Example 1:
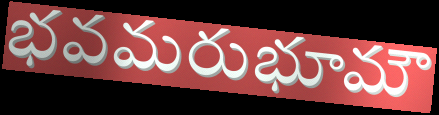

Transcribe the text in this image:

భవమరుభూమౌ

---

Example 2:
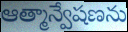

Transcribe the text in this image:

ఆత్మాన్వేషణను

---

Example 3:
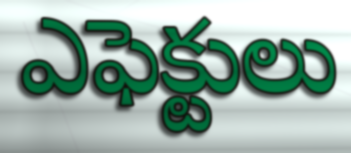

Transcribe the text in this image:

ఎఫెక్టులు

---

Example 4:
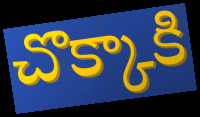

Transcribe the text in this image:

చొక్కాకి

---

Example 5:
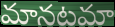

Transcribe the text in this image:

మానటమా